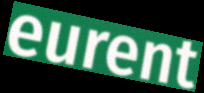
eurent